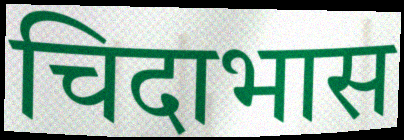
चिदाभास